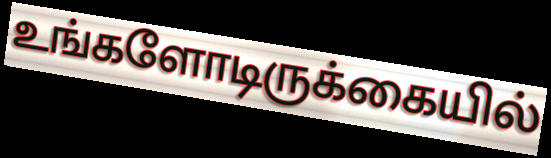
உங்களோடிருக்கையில்